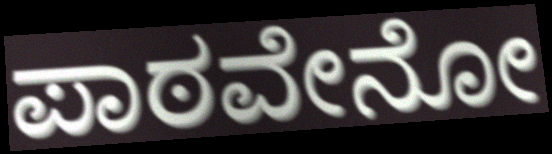
ಪಾಠವೇನೋ